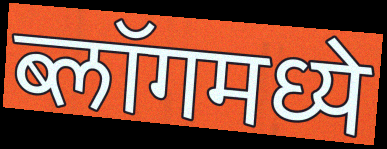
ब्लॉगमध्ये